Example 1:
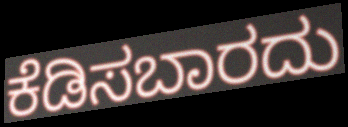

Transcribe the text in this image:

ಕೆಡಿಸಬಾರದು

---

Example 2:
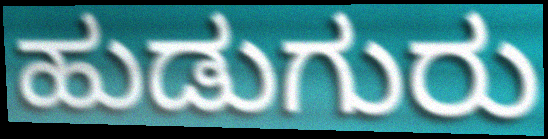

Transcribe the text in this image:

ಹುಡುಗುರು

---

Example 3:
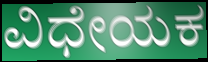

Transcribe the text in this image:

ವಿಧೇಯಕ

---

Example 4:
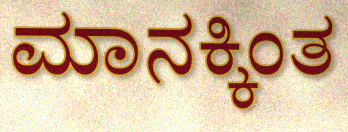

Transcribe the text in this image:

ಮಾನಕ್ಕಿಂತ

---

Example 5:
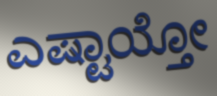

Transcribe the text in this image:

ಎಷ್ಟಾಯ್ತೋ